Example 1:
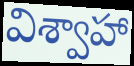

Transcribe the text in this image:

విశ్వాహా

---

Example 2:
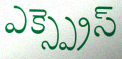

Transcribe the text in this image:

ఎక్స్ప్రెస్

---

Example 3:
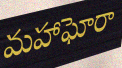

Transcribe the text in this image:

మహాఘోరా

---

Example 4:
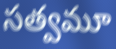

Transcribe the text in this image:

సత్వమూ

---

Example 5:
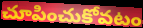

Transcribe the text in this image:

చూపించుకోవటం